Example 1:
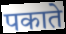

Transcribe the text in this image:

पकाते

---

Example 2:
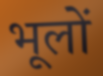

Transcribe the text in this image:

भूलों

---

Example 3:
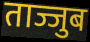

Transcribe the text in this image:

ताज्जुब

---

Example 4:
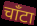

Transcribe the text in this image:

चाँटा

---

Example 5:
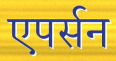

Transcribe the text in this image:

एपर्सन